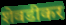
शेवडीकर